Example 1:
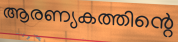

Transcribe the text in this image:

ആരണ്യകത്തിന്റെ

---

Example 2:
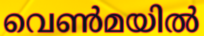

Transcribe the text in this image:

വെൺമയിൽ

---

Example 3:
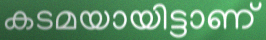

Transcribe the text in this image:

കടമയായിട്ടാണ്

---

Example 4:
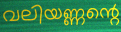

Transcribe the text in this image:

വലിയണ്ണന്റെ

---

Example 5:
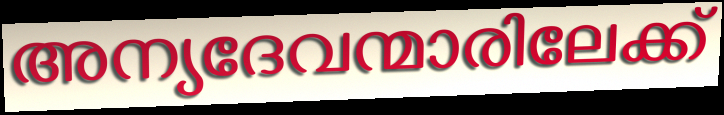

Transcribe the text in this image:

അന്യദേവന്മാരിലേക്ക്